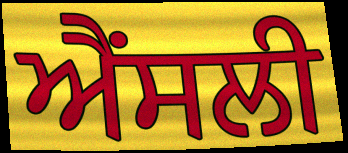
ਐਂਸਲੀ